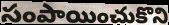
సంపాయించుకొని